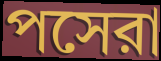
পসেরা